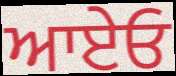
ਆਏਓ